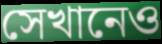
সেখানেও